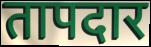
तापदार